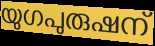
യുഗപുരുഷന്